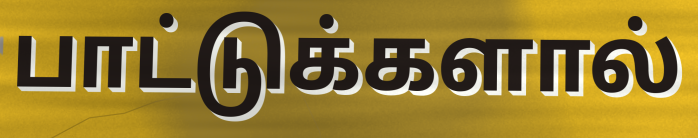
பாட்டுக்களால்